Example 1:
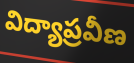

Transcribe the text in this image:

విద్యాప్రవీణ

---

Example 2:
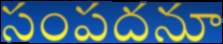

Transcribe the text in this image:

సంపదనూ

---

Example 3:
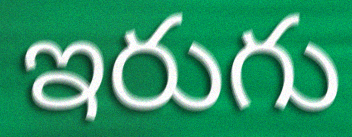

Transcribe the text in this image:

ఇరుగు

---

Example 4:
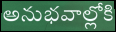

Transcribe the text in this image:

అనుభవాల్లోకి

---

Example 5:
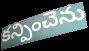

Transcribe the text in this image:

కన్పించెను